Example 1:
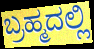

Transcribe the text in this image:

ಬ್ರಹ್ಮದಲ್ಲಿ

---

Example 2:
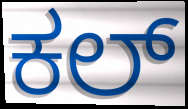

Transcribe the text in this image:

ಕಲ್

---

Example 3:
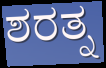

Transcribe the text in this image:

ಶರತ್ನ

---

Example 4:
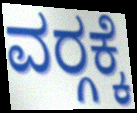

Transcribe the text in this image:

ವರ‍್ಗಕ್ಕೆ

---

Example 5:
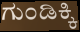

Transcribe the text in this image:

ಗುಂಡಿಕ್ಕಿ